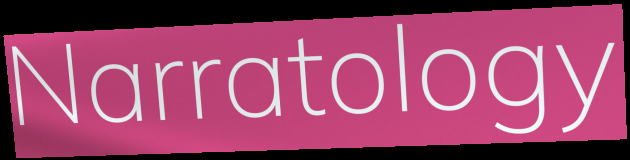
Narratology